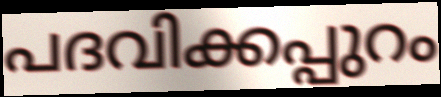
പദവിക്കപ്പുറം